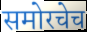
समोरचेच